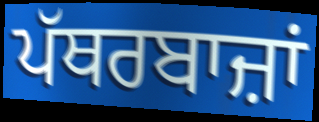
ਪੱਥਰਬਾਜ਼ਾਂ